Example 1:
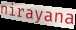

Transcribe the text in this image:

nirayana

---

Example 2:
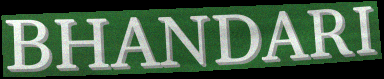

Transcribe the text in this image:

BHANDARI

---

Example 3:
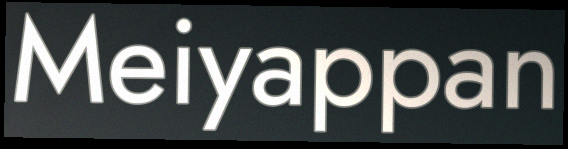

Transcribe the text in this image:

Meiyappan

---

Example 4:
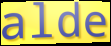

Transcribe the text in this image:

alde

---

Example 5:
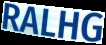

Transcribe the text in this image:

RALHG